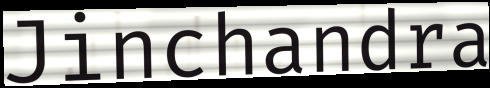
Jinchandra